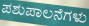
ಪಶುಪಾಲನೆಗಳು